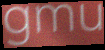
gmu